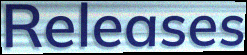
Releases